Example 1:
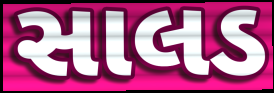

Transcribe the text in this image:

સાલડ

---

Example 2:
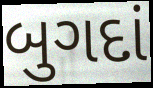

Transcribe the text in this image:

બુગદાં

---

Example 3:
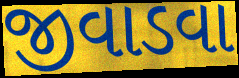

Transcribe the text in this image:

જીવાડવા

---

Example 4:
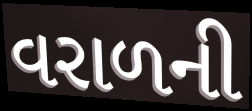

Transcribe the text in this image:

વરાળની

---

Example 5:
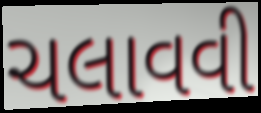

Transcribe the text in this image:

ચલાવવી